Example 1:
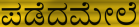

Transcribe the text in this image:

ಪಡೆದಮೇಲೆ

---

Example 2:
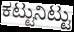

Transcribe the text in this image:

ಕಟ್ಟುನಿಟ್ಟು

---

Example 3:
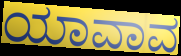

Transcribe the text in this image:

ಯಾವಾವ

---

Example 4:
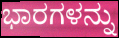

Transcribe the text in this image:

ಭಾರಗಳನ್ನು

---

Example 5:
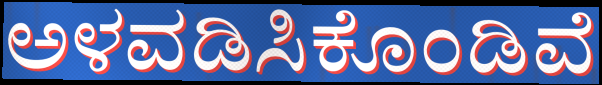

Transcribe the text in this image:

ಅಳವಡಿಸಿಕೊಂಡಿವೆ